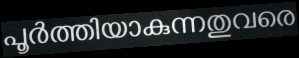
പൂർത്തിയാകുന്നതുവരെ